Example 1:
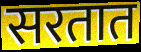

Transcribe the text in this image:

सरतात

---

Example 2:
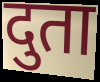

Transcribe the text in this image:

दुता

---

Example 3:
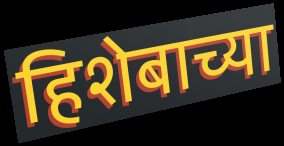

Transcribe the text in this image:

हिशेबाच्या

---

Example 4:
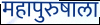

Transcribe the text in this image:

महापुरुषाला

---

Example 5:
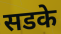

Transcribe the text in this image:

सडके